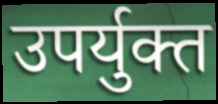
उपर्युक्त